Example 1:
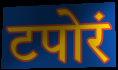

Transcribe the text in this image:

टपोरं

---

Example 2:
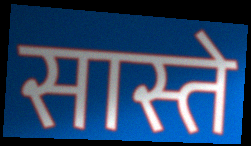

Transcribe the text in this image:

सास्ते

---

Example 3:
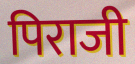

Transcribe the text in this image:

पिराजी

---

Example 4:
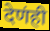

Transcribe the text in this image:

देणंही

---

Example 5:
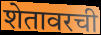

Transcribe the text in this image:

शेतावरची